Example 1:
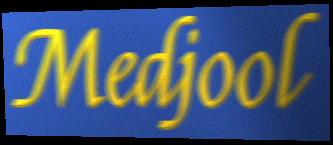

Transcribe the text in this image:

Medjool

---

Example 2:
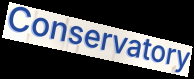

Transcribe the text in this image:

Conservatory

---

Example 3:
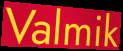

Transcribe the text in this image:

Valmik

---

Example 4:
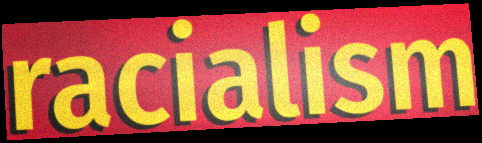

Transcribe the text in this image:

racialism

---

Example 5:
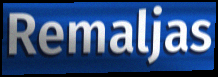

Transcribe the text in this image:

Remaljas